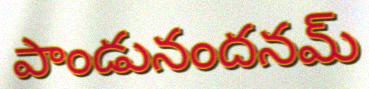
పాండునందనమ్